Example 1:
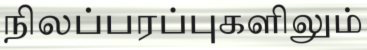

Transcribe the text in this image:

நிலப்பரப்புகளிலும்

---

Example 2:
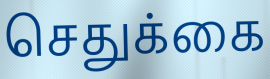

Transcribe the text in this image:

செதுக்கை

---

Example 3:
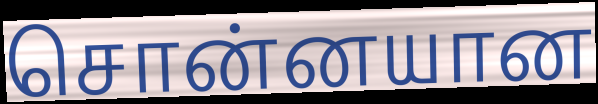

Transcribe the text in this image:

சொன்னயான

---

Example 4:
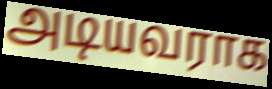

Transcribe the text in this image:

அடியவராக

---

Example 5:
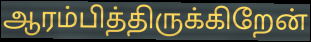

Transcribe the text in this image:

ஆரம்பித்திருக்கிறேன்